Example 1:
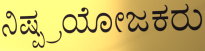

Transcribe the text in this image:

ನಿಷ್ಪ್ರಯೋಜಕರು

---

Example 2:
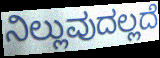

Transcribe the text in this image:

ನಿಲ್ಲುವುದಲ್ಲದೆ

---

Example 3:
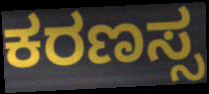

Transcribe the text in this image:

ಕರಣಸ್ಸ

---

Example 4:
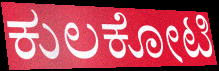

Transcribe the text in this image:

ಕುಲಕೋಟಿ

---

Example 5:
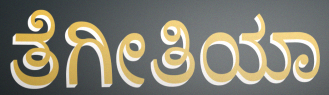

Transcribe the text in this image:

ತೆಗೀತಿಯಾ